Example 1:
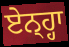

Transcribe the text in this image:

ਏਨ੍ਹ੍ਹਾ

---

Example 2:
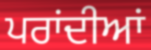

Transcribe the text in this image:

ਪਰਾਂਦੀਆਂ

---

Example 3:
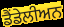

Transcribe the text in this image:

ਡੈਂਡੇਲੀਅਨ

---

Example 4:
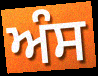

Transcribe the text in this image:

ਅੰਸ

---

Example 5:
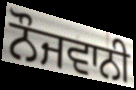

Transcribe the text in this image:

ਨੌਜਵਾਨੀ